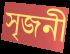
সৃজনী